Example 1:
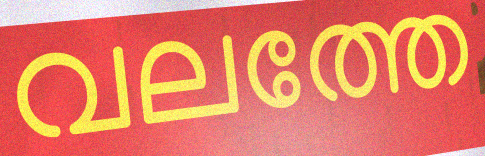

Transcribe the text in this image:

വലത്തേ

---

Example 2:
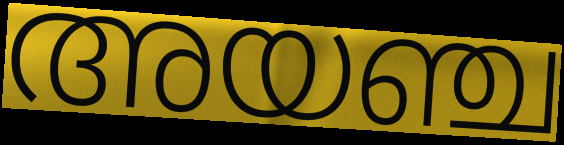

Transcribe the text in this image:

അയഞ്ച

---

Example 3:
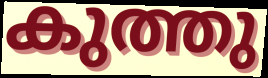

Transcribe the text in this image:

കുത്തു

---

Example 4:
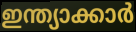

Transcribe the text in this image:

ഇന്ത്യാക്കാർ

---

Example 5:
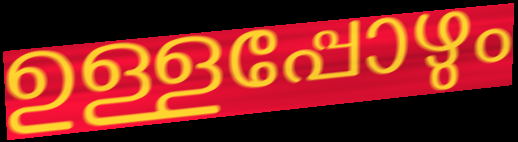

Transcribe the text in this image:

ഉള്ളപ്പോഴും